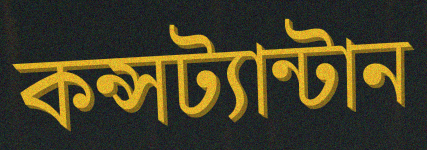
কন্সট্যান্টান